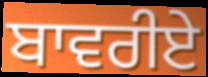
ਬਾਵਰੀਏ